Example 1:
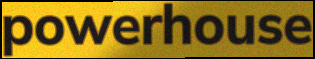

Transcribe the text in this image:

powerhouse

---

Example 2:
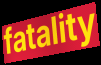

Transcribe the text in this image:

fatality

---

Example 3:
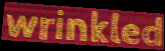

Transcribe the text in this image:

wrinkled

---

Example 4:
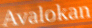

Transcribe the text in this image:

Avalokan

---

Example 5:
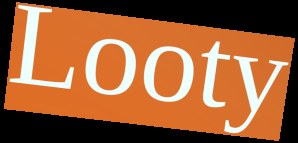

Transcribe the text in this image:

Looty